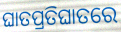
ଘାତପ୍ରତିଘାତରେ